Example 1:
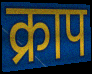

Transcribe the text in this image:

क्राप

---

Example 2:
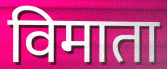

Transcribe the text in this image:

विमाता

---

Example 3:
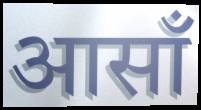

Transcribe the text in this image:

आसाँ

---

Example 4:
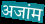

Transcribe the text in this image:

अजांम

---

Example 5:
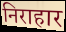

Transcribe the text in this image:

निराहार